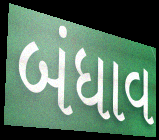
બંધાવ